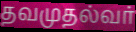
தவமுதல்வர்